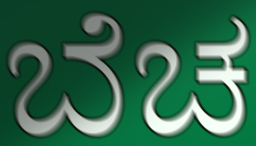
ಬೆಚ